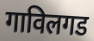
गाविलगड